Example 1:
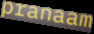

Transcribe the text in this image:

pranaam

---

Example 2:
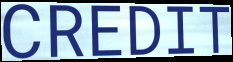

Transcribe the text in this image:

CREDIT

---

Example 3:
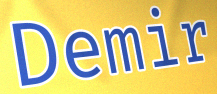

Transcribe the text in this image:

Demir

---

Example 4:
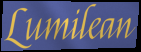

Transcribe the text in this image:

Lumilean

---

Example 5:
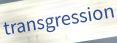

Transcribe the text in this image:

transgression